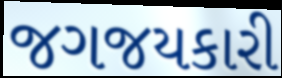
જગજયકારી